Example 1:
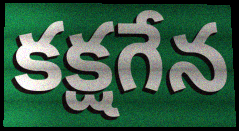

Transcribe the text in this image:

కక్షగేన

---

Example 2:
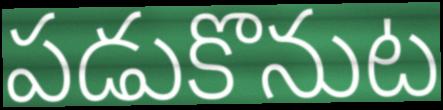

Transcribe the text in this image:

పడుకొనుట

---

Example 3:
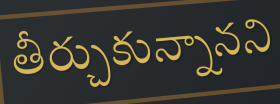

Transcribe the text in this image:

తీర్చుకున్నానని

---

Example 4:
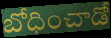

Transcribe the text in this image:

బోధించాడో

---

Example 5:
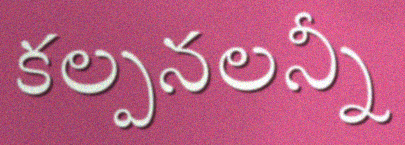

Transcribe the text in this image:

కల్పనలన్నీ